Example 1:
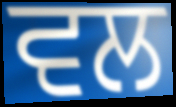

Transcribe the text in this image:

ਵਲ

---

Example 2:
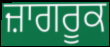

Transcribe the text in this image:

ਜ਼ਾਗਰੂਕ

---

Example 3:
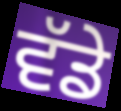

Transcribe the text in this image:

ਵੱਡੇ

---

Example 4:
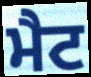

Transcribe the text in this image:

ਮੈਟ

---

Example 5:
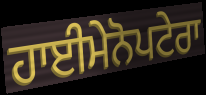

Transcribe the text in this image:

ਹਾਈਮੇਨੋਪਟੇਰਾ